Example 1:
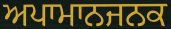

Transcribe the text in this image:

ਅਪਾਮਾਨਜਨਕ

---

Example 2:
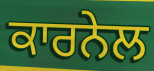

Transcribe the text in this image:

ਕਾਰਨੇਲ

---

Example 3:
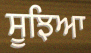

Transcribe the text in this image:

ਸੂਝਿਆ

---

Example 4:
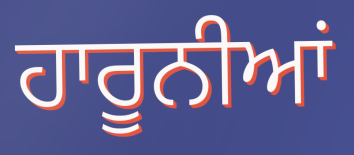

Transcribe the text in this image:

ਹਾਰੂਨੀਆਂ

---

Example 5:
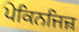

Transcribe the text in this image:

ਪੇਕਿਨਜਿਜ਼